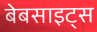
बेबसाइट्स